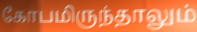
கோபமிருந்தாலும்